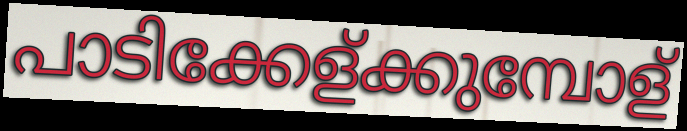
പാടിക്കേള്ക്കുമ്പോള്